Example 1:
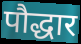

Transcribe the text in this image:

पौद्धार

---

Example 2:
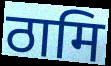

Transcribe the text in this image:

ठामि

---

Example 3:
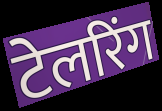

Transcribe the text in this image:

टेलरिंग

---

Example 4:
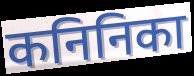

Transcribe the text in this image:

कनिनिका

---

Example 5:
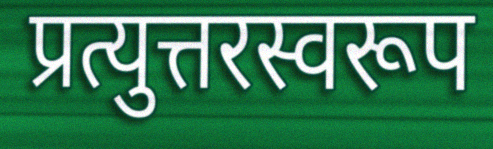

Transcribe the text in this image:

प्रत्युत्तरस्वरूप